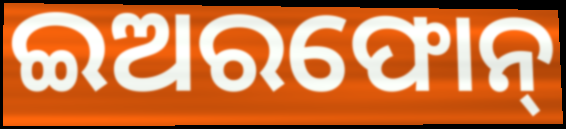
ଇଅରଫୋନ୍